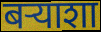
बऱ्याशा